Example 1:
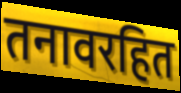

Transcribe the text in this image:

तनावरहित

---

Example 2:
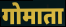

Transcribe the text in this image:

गोमाता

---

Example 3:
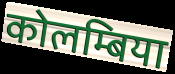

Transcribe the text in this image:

कोलम्बिया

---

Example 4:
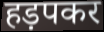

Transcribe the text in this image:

हड़पकर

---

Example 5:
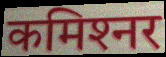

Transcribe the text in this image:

कमिश्‍नर